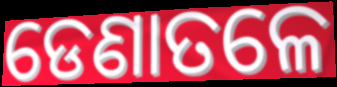
ଡେଣାତଳେ